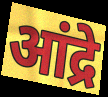
आंद्रे